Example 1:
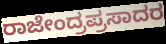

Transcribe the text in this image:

ರಾಜೇಂದ್ರಪ್ರಸಾದರ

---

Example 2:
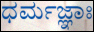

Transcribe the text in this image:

ಧರ್ಮಜ್ಞಾಃ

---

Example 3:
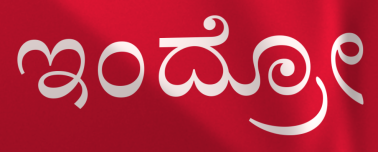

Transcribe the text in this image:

ಇಂದ್ರೋ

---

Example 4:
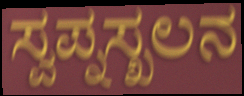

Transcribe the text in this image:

ಸ್ವಪ್ನಸ್ಖಲನ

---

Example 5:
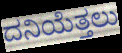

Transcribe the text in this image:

ದನಿಯೆತ್ತಲು